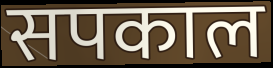
सपकाल